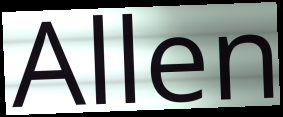
Allen